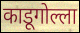
काडूगोल्ला